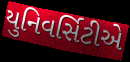
યુનિવર્સિટીએ